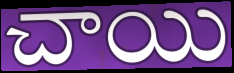
చాయి